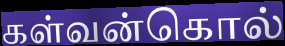
கள்வன்கொல்